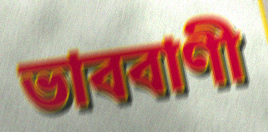
ভাববাণী